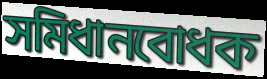
সমিধানবোধক